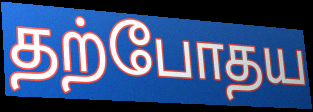
தற்போதய